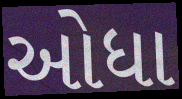
ઓધા